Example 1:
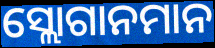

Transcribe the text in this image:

ସ୍ଲୋଗାନମାନ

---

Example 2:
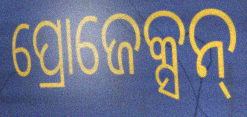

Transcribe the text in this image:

ପ୍ରୋଜେକ୍ସନ୍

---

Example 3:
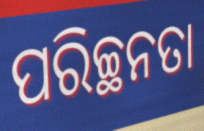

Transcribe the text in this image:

ପରିଚ୍ଛନତା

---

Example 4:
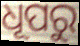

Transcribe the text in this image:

ଧୂପରୁ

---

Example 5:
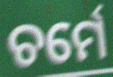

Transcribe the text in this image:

ଚର୍ମେ